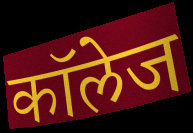
कॉलेज